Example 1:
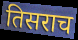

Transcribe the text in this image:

तिसराच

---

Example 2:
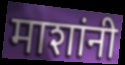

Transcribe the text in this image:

माशांनी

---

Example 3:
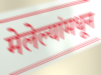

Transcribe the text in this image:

मेलेल्यांमधून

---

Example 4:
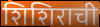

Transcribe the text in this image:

शिशिराची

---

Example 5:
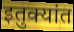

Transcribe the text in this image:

इतुक्यांत